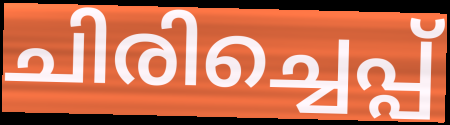
ചിരിച്ചെപ്പ്